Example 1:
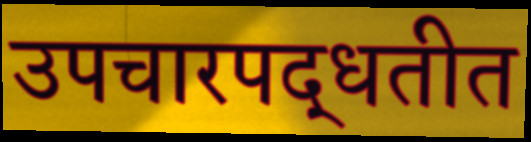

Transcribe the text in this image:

उपचारपद्धतीत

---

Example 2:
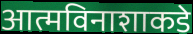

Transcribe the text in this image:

आत्मविनाशाकडे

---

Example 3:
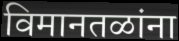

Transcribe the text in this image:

विमानतळांना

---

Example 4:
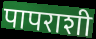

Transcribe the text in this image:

पापराशी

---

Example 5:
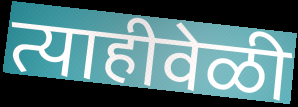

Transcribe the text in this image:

त्याहीवेळी